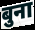
बुना